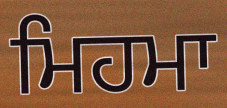
ਮਿਹਮਾ